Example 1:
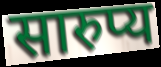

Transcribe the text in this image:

सारुप्य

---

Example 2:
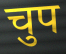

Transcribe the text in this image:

चुप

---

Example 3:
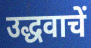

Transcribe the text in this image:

उद्धवाचें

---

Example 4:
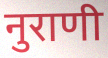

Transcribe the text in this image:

नुराणी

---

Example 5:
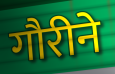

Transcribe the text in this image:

गौरीने